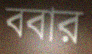
ববার